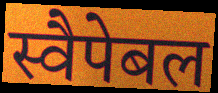
स्वैपेबल